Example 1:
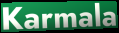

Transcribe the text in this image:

Karmala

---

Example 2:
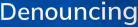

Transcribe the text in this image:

Denouncing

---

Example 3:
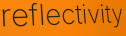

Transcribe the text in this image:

reflectivity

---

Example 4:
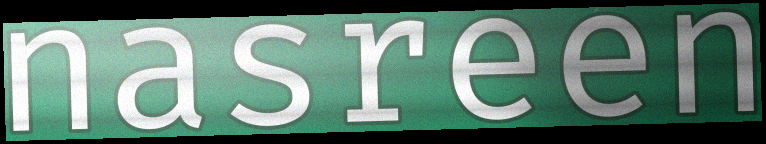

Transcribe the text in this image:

nasreen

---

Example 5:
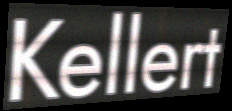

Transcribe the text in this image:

Kellert